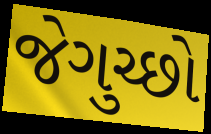
જેગુચ્છો